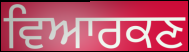
ਵਿਆਰਕਣ